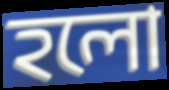
হলো